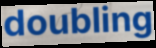
doubling